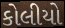
કોલીયો